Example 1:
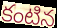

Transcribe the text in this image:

కంటిన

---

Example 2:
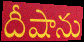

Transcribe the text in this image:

దీషాను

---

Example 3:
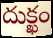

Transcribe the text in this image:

దుక్ఖం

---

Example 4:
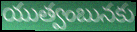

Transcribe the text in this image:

యుత్వంబునకు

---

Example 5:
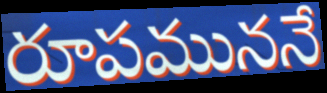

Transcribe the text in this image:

రూపముననే